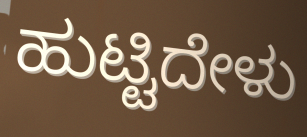
ಹುಟ್ಟಿದೇಳು